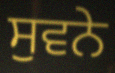
ਸੁਵਨੇ